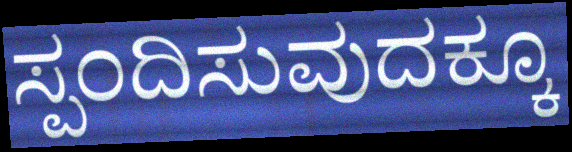
ಸ್ಪಂದಿಸುವುದಕ್ಕೂ